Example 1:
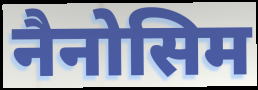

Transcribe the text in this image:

नैनोसिम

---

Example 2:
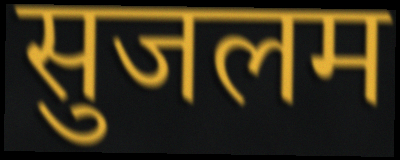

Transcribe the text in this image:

सुजलम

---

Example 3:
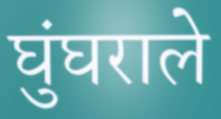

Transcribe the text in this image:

घुंघराले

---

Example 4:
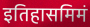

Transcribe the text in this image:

इतिहासमिमं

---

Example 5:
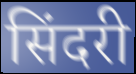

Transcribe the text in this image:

सिंदरी